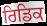
ਰਿਡਿਕ